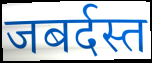
जबर्दस्त